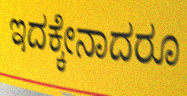
ಇದಕ್ಕೇನಾದರೂ